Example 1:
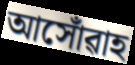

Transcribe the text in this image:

আসোঁৱাহ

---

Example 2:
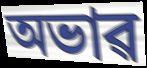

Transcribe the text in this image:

অভাৱ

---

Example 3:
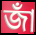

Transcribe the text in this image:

জাঁ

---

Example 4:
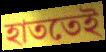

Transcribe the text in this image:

হাততেই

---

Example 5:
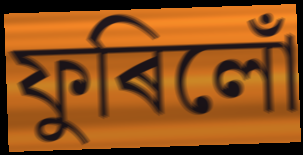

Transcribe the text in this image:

ফুৰিলোঁ